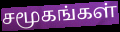
சமூகங்கள்